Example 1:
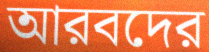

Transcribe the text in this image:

আরবদের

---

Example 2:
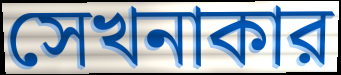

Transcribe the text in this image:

সেখনাকার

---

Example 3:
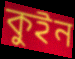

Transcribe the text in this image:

কুইন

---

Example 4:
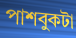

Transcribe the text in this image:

পাশবুকটা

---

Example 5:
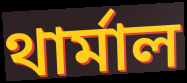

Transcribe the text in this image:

থার্মাল